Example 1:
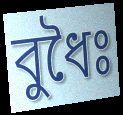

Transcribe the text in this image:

বুধৈঃ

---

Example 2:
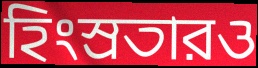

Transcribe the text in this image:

হিংস্রতারও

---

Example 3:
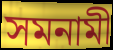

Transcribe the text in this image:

সমনামী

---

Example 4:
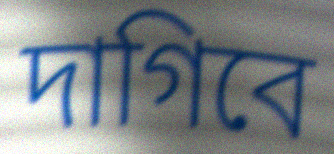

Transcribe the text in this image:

দাগিবে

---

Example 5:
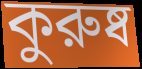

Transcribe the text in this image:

কুরুষ্ব